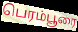
பெரம்பூரை